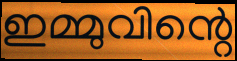
ഇമ്മുവിന്റെ